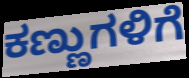
ಕಣ್ಣುಗಳಿಗೆ